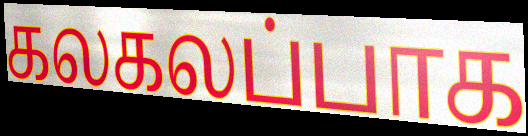
கலகலப்பாக